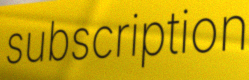
subscription